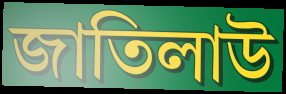
জাতিলাউ